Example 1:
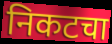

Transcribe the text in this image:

निकटचा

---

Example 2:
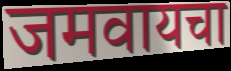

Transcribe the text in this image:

जमवायचा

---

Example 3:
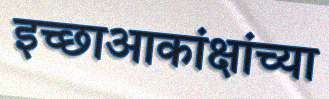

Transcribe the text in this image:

इच्छाआकांक्षांच्या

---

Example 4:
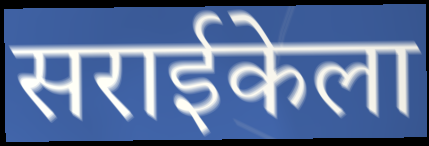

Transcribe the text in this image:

सराईकेला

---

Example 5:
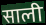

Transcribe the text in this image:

साली